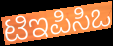
ಟಿಇಪಿಸಿಒ